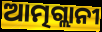
ଆତ୍ମଗ୍ଲାନୀ